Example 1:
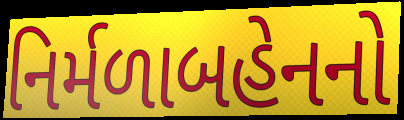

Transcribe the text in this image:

નિર્મળાબહેનનો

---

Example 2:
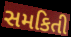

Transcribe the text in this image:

સમકિતી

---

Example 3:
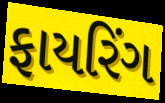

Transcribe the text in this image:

ફાયરિંગ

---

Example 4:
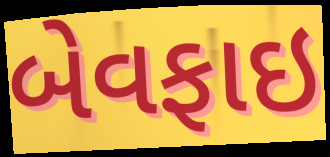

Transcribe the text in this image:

બેવફાઇ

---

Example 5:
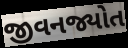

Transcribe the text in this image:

જીવનજ્યોત